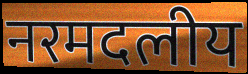
नरमदलीय